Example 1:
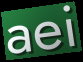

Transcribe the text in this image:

aei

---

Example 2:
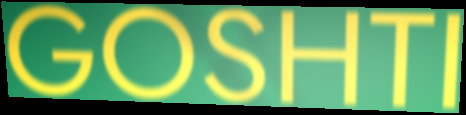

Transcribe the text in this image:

GOSHTI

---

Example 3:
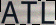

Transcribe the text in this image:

ATL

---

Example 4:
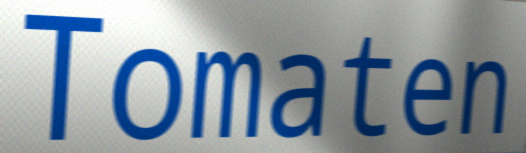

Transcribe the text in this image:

Tomaten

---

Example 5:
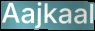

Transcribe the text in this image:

Aajkaal